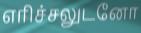
எரிச்சலுடனோ